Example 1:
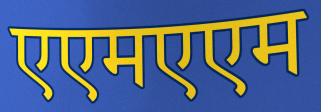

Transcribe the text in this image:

एएमएएम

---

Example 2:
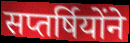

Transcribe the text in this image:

सप्तर्षियोंने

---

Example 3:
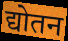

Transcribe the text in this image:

द्योतन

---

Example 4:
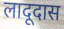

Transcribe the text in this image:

लादूदास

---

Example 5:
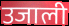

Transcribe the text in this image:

उजाली